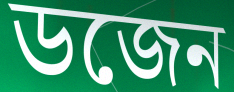
ডজেন